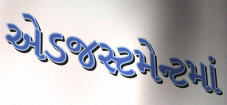
એડજસ્ટમેન્ટમાં